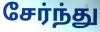
சேர்ந்து